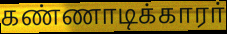
கண்ணாடிக்காரர்